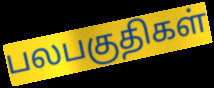
பலபகுதிகள்